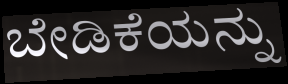
ಬೇಡಿಕೆಯನ್ನು